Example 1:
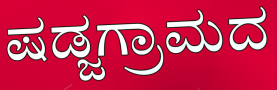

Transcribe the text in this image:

ಷಡ್ಜಗ್ರಾಮದ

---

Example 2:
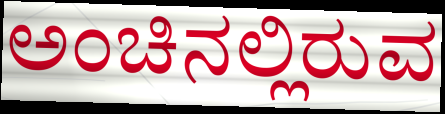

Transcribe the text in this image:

ಅಂಚಿನಲ್ಲಿರುವ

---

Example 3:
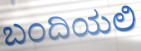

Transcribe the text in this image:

ಬಂದಿಯಲಿ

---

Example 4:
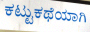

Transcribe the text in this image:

ಕಟ್ಟುಕಥೆಯಾಗಿ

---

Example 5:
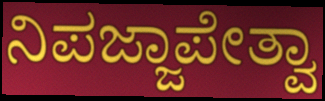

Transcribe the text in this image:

ನಿಪಜ್ಜಾಪೇತ್ವಾ